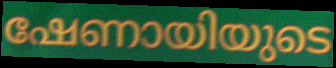
ഷേണായിയുടെ